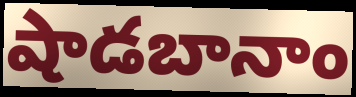
షాడబానాం